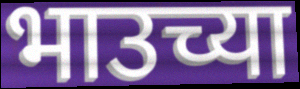
भाउच्या